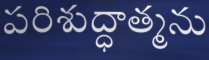
పరిశుద్ధాత్మను